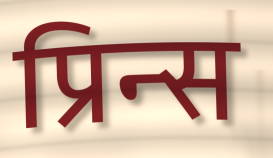
प्रिन्स